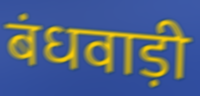
बंधवाड़ी